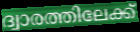
ദ്വാരത്തിലേക്ക്